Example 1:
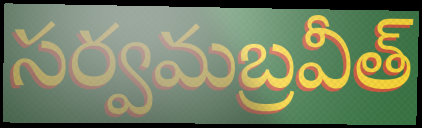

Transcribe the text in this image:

సర్వమబ్రవీత్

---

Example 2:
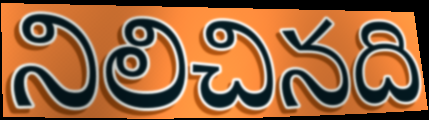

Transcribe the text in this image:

నిలిచినది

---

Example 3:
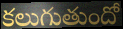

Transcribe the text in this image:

కలుగుతుందో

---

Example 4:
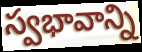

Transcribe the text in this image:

స్వభావాన్ని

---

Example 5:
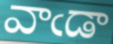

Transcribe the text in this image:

వాఁడా